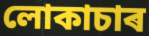
লোকাচাৰ